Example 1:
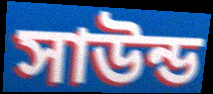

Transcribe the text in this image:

সাউন্ড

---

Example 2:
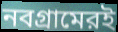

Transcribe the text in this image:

নবগ্রামেরই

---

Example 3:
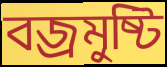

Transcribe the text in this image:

বজ্রমুষ্টি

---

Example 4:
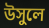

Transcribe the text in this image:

উসুলে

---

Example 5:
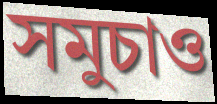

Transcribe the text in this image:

সমুচাও